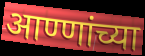
आण्णांच्या